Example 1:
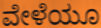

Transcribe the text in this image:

ವೇಳೆಯೂ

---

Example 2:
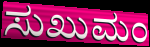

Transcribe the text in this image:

ಸುಖುಮಂ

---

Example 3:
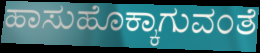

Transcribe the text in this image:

ಹಾಸುಹೊಕ್ಕಾಗುವಂತೆ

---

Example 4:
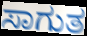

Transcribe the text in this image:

ಸಾಗುತ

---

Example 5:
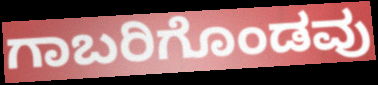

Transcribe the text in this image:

ಗಾಬರಿಗೊಂಡವು